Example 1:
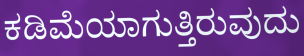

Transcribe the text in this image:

ಕಡಿಮೆಯಾಗುತ್ತಿರುವುದು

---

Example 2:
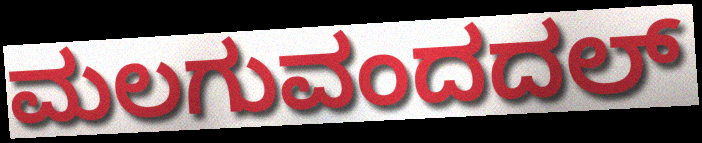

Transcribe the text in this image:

ಮಲಗುವಂದದಲ್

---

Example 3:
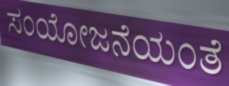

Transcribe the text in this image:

ಸಂಯೋಜನೆಯಂತೆ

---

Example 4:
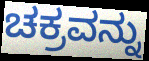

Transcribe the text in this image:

ಚಕ್ರವನ್ನು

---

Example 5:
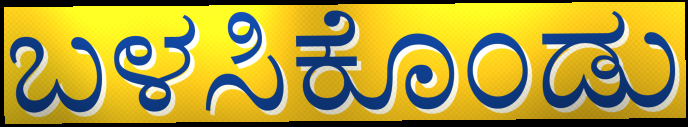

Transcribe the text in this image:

ಬಳಸಿಕೊಂಡು